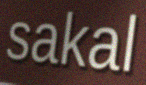
sakal